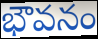
భౌవనం